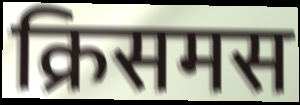
क्रिसमस